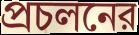
প্রচলনের